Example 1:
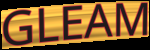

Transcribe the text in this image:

GLEAM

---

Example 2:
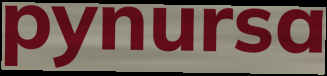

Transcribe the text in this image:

pynursa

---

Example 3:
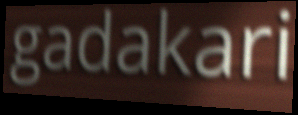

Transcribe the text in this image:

gadakari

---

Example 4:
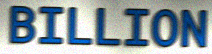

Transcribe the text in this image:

BILLION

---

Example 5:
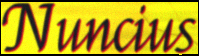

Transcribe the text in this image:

Nuncius